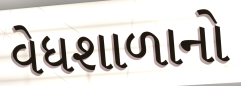
વેધશાળાનો